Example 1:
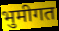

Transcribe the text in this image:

भुमीगत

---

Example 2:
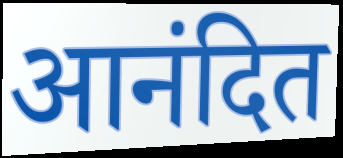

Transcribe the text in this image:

आनंदित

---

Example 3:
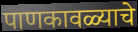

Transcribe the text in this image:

पाणकावळ्याचे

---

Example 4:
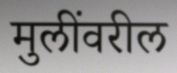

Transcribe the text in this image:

मुलींवरील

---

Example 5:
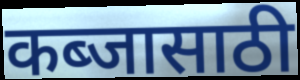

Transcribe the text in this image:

कब्जासाठी